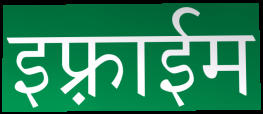
इफ़्राईम